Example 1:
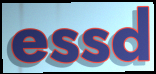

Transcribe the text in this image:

essd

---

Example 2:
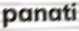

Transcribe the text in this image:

panati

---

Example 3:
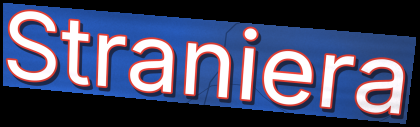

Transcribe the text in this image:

Straniera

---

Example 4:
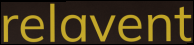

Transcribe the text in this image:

relavent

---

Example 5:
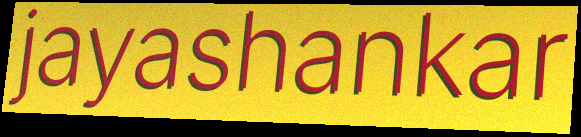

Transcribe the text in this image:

jayashankar